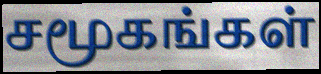
சமூகங்கள்